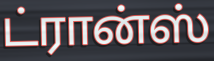
ட்ரான்ஸ்